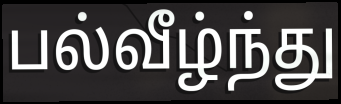
பல்வீழ்ந்து